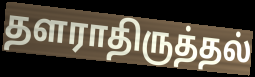
தளராதிருத்தல்